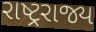
રાષ્ટ્રરાજ્ય